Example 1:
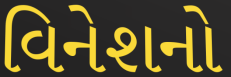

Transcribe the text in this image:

વિનેશનો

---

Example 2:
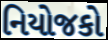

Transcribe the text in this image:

નિયોજકો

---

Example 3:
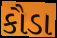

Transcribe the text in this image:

કૌડા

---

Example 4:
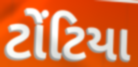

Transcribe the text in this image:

ટોંટિયા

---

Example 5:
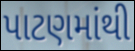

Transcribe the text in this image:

પાટણમાંથી